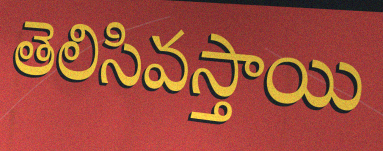
తెలిసివస్తాయి